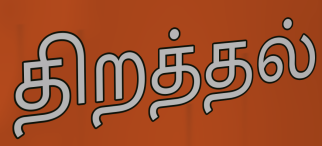
திறத்தல்